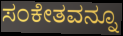
ಸಂಕೇತವನ್ನೂ